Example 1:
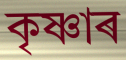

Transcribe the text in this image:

কৃষ্ণাৰ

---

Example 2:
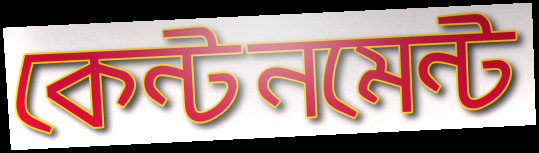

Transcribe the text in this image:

কেন্টনমেন্ট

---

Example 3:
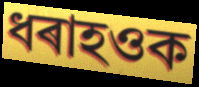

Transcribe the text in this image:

ধৰাহওক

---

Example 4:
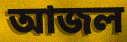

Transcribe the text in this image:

আজল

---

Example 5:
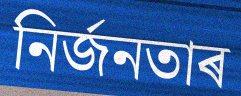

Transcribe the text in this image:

নিৰ্জনতাৰ